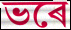
ভৰে